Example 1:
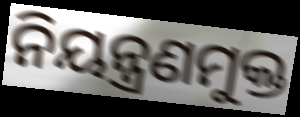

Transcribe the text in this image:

ନିୟନ୍ତ୍ରଣମୁକ୍ତ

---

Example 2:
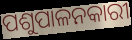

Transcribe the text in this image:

ପଶୁପାଳନକାରୀ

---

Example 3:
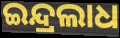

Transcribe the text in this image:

ଇନ୍ଦ୍ରଲାଧ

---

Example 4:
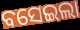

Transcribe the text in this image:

ବସେଇଲା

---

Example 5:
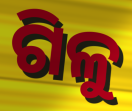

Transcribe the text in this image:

ଗିଳୁ